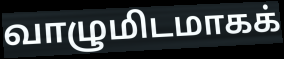
வாழுமிடமாகக்